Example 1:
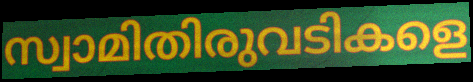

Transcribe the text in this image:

സ്വാമിതിരുവടികളെ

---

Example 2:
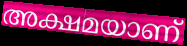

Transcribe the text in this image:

അക്ഷമയാണ്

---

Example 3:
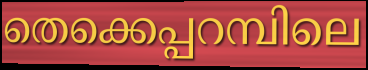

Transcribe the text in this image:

തെക്കെപ്പറമ്പിലെ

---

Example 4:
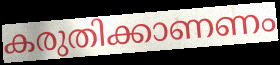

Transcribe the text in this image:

കരുതിക്കാണണം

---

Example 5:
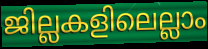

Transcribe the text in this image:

ജില്ലകളിലെല്ലാം